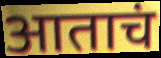
आताचं